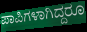
ಪಾಪಿಗಳಾಗಿದ್ದರೂ